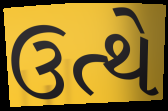
ઉત્થે